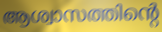
ആശ്വാസത്തിന്റെ